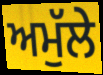
ਅਮੁੱਲੇ